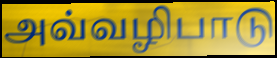
அவ்வழிபாடு